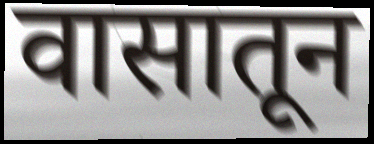
वासातून